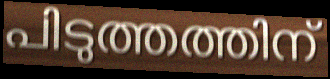
പിടുത്തത്തിന്